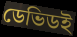
ডেভিডই